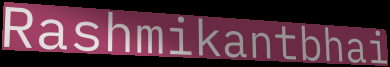
Rashmikantbhai